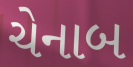
ચેનાબ